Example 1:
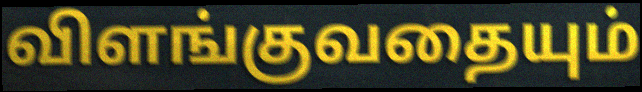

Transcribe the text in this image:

விளங்குவதையும்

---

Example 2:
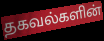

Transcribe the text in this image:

தகவல்களின்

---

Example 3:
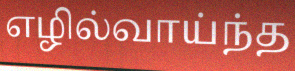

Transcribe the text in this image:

எழில்வாய்ந்த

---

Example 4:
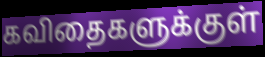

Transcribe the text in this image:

கவிதைகளுக்குள்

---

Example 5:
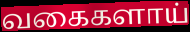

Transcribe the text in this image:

வகைகளாய்